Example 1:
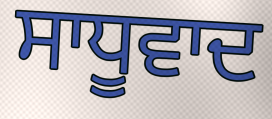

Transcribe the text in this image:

ਸਾਧੂਵਾਦ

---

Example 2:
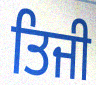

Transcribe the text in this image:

ਤਿਜੀ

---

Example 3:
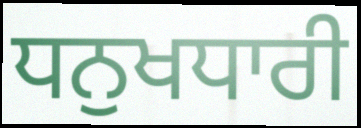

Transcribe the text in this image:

ਧਨੁਖਧਾਰੀ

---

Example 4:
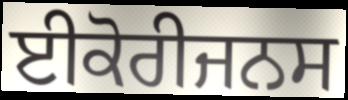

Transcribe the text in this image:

ਈਕੋਰੀਜਨਸ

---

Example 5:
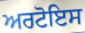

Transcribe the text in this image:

ਅਰਟੋਇਸ